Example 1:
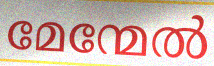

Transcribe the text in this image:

മേന്മേൽ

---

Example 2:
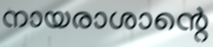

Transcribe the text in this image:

നായരാശാന്റെ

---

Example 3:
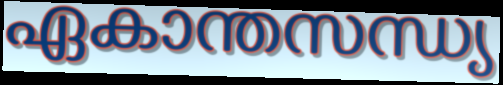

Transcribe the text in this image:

ഏകാന്തസന്ധ്യ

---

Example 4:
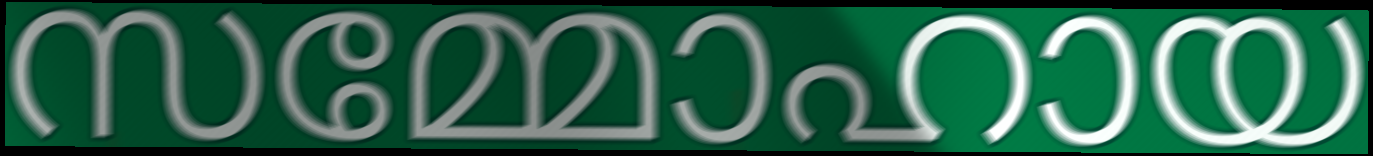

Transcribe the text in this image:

സമ്മോഹായ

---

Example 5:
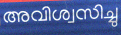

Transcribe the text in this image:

അവിശ്വസിച്ചു